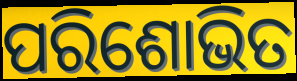
ପରିଶୋଭିତ